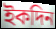
ইকদিন